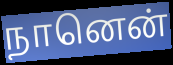
நானென்